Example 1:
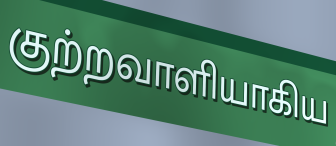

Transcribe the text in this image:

குற்றவாளியாகிய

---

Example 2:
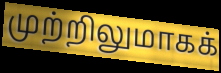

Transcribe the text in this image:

முற்றிலுமாகக்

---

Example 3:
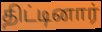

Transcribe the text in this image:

திட்டினார்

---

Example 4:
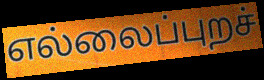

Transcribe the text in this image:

எல்லைப்புறச்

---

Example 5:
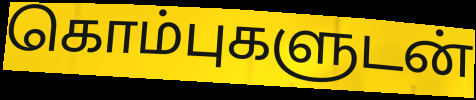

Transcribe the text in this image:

கொம்புகளுடன்